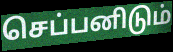
செப்பனிடும்